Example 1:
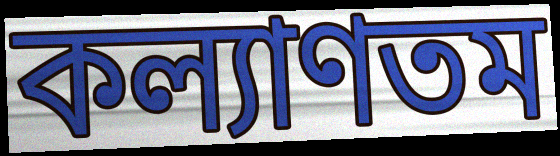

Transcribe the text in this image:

কল্যাণতম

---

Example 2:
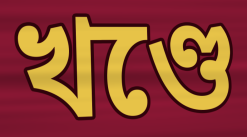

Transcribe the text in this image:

খণ্ডে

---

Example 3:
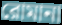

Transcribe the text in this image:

রোমানা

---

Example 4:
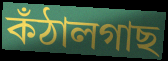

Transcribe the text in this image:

কঁঠালগাছ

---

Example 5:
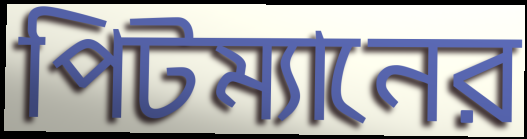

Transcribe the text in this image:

পিটম্যানের